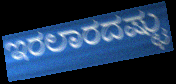
ಇರಲಾರದಷ್ಟು